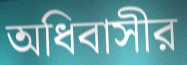
অধিবাসীর